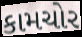
કામચોર